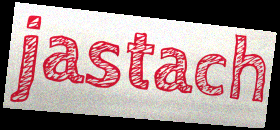
jastach